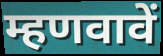
म्हणवावें